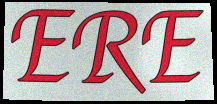
ERE